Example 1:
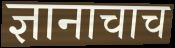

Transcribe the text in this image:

ज्ञानाचाच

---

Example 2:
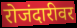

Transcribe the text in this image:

रोजंदारीवर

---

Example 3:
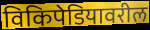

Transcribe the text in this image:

विकिपेडियावरील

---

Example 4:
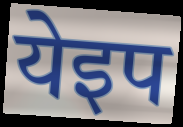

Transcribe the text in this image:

येइप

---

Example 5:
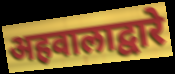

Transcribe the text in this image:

अहवालाद्वारे